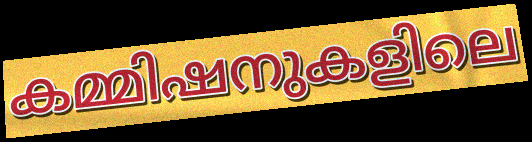
കമ്മിഷനുകളിലെ